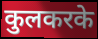
कुलकरके